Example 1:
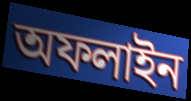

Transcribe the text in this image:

অফলাইন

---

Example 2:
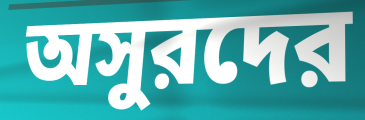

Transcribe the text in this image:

অসুরদের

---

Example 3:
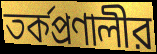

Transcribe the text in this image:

তর্কপ্রণালীর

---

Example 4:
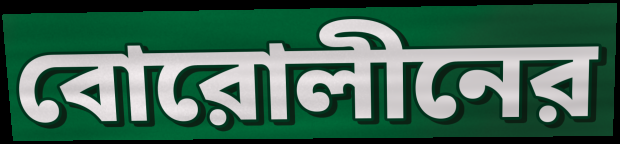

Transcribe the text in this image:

বোরোলীনের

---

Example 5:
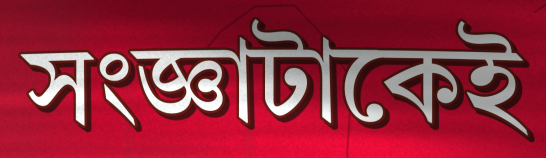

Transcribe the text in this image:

সংজ্ঞাটাকেই